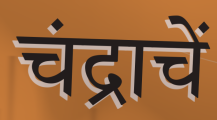
चंद्राचें